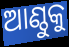
ଆଣ୍ଠୁକୁ